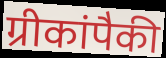
ग्रीकांपैकी